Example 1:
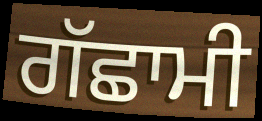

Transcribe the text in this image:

ਗੱਛਾਮੀ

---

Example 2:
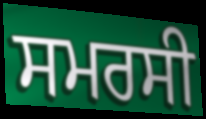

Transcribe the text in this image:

ਸਮਰਸੀ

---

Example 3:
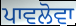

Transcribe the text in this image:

ਪਾਵਲੋਵਾ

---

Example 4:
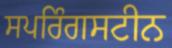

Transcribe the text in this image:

ਸਪਰਿੰਗਸਟੀਨ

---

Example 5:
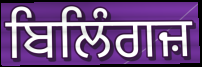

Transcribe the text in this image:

ਬਿਲਿੰਗਜ਼